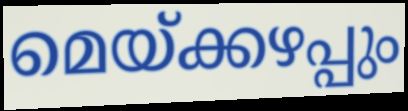
മെയ്ക്കഴപ്പും